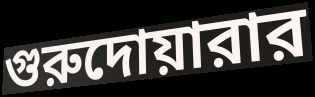
গুরুদোয়ারার